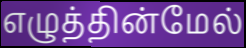
எழுத்தின்மேல்